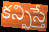
కన్పిస్తే